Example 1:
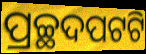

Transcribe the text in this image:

ପ୍ରଚ୍ଛଦପଟଟି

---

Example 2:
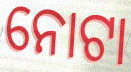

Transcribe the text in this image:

ନୋଟା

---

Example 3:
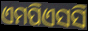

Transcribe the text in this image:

ଏମପିଏସସି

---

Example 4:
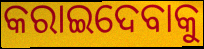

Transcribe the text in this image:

କରାଇଦେବାକୁ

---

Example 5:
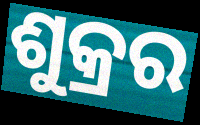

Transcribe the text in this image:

ଶୁକ୍ରର